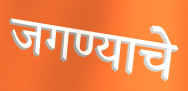
जगण्याचे